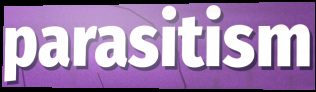
parasitism